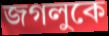
জগলুকে